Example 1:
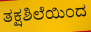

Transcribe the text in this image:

ತಕ್ಷಶಿಲೆಯಿಂದ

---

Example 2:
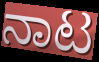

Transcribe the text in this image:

ನಾಟ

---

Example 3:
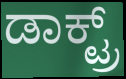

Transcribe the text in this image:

ಡಾಕ್ಟ್ರ್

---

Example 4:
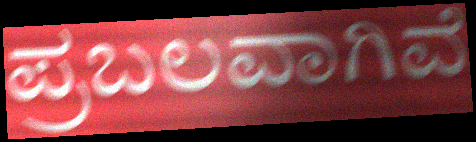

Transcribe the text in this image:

ಪ್ರಬಲವಾಗಿವೆ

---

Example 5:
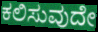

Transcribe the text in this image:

ಕಲಿಸುವುದೇ